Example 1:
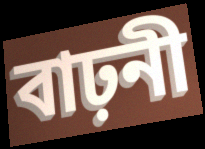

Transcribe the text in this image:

বাঢ়নী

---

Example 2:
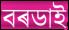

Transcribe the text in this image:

বৰডাই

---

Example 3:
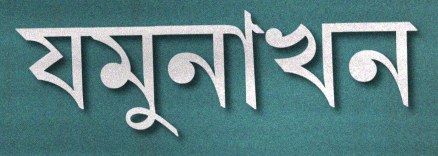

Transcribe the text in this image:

যমুনাখন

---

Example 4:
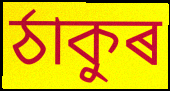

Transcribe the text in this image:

ঠাকুৰ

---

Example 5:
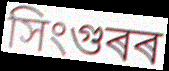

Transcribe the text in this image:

সিংগুৰৰ